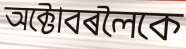
অক্টোবৰলৈকে